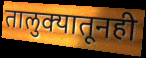
तालुक्यातूनही